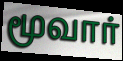
மூவார்